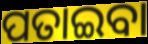
ପତାଇବା